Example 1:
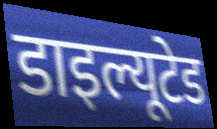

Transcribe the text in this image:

डाइल्यूटेड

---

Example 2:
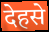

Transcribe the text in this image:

देहसे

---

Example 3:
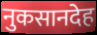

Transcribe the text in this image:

नुकसानदेह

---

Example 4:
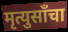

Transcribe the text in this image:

मृत्युसाँचा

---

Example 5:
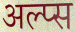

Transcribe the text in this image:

अल्प्स